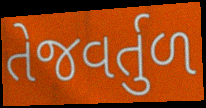
તેજવર્તુળ